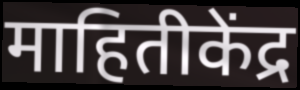
माहितीकेंद्र